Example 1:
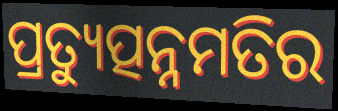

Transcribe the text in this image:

ପ୍ରତ୍ୟୁତ୍ପନ୍ନମତିର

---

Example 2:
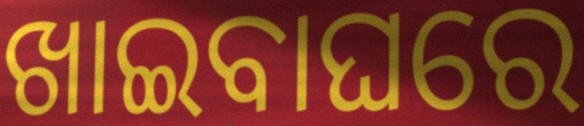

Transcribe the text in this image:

ଖାଇବାଘରେ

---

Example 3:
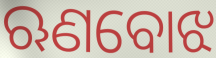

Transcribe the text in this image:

ଋଣବୋଝ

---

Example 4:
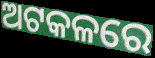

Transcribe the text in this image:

ଅଟକଳରେ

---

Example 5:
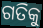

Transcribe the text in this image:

ଗତିକୁ